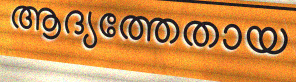
ആദ്യത്തേതായ